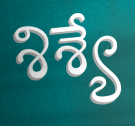
శిశ్యే